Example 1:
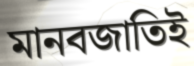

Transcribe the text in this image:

মানবজাতিই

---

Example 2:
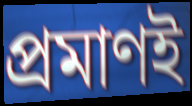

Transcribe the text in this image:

প্রমাণই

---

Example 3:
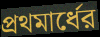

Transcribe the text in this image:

প্রথমার্ধের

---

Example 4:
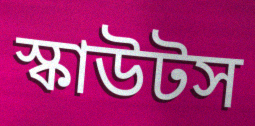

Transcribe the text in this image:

স্কাউটস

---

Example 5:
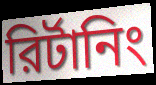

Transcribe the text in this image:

রির্টানিং